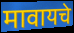
मावायचे